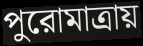
পুরোমাত্রায়